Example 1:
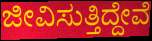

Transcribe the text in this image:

ಜೀವಿಸುತ್ತಿದ್ದೇವೆ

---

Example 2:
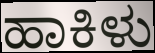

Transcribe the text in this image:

ಹಾಕಿಳು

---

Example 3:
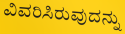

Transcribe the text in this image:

ವಿವರಿಸಿರುವುದನ್ನು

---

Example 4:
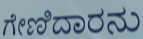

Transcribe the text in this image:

ಗೇಣಿದಾರನು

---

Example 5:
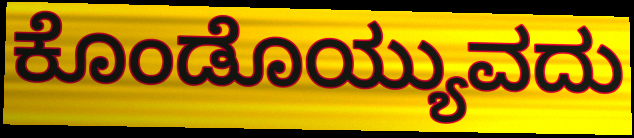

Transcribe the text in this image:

ಕೊಂಡೊಯ್ಯುವದು